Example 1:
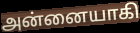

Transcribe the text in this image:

அன்னையாகி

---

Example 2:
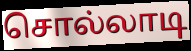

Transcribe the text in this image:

சொல்லாடி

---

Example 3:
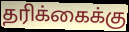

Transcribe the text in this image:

தரிக்கைக்கு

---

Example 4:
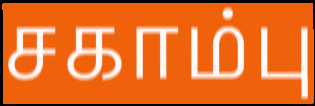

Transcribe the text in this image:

சகாம்பு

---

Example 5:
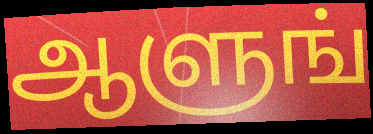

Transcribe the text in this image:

ஆளுங்